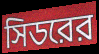
সিডরের